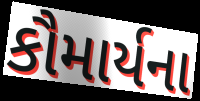
કૌમાર્યના